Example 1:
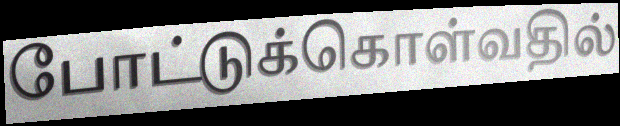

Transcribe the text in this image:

போட்டுக்கொள்வதில்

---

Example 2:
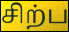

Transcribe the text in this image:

சிற்ப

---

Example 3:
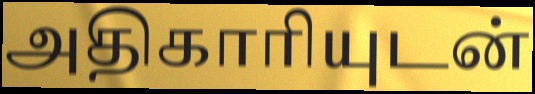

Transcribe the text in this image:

அதிகாரியுடன்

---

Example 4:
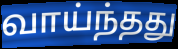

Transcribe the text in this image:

வாய்ந்தது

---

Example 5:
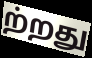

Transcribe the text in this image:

ற்றது